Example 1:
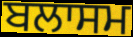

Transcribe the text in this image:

ਬਲਾਸਮ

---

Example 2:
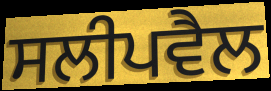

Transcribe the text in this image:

ਸਲੀਪਵੈਲ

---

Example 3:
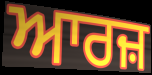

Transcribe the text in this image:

ਆਰਜ਼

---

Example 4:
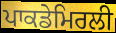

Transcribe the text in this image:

ਪਾਕਡੇਮਿਰਲੀ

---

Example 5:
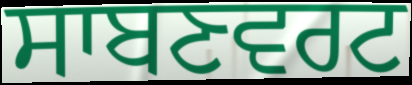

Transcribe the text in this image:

ਸਾਬਣਵਰਟ